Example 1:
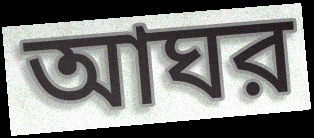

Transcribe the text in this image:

আঘর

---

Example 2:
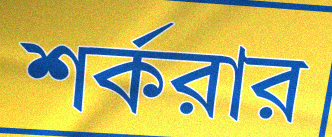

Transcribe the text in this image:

শর্করার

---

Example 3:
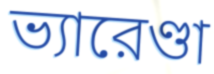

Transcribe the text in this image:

ভ্যারেণ্ডা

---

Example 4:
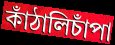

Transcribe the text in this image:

কাঁঠালিচাঁপা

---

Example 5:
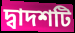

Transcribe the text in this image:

দ্বাদশটি